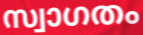
സ്വാഗതം